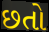
છતો